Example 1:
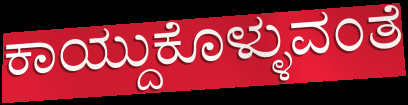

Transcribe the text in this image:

ಕಾಯ್ದುಕೊಳ್ಳುವಂತೆ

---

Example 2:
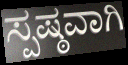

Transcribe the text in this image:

ಸ್ಪಷ್ಠವಾಗಿ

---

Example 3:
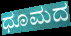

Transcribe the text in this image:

ಧೂಮದ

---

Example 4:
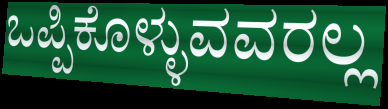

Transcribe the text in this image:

ಒಪ್ಪಿಕೊಳ್ಳುವವರಲ್ಲ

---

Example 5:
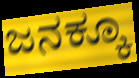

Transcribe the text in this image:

ಜನಕ್ಕೂ